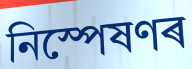
নিস্পেষণৰ